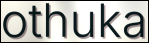
othuka